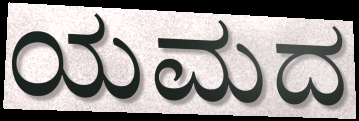
ಯಮದ